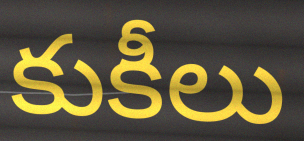
కుకీలు